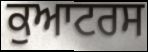
ਕੁਆਟਰਸ